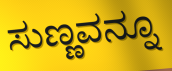
ಸುಣ್ಣವನ್ನೂ